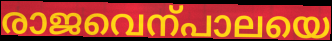
രാജവെന്പാലയെ